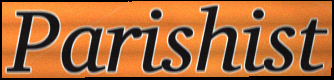
Parishist